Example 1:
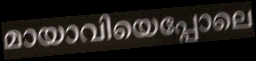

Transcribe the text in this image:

മായാവിയെപ്പോലെ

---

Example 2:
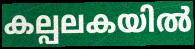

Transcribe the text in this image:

കല്പലകയിൽ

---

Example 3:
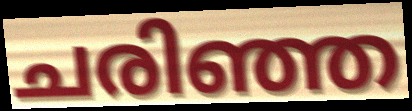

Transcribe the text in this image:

ചരിഞ്ഞ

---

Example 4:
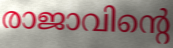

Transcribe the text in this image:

രാജാവിന്റെ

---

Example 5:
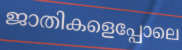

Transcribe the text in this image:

ജാതികളെപ്പോലെ